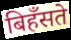
बिहँसते